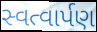
સ્વત્વાર્પણ